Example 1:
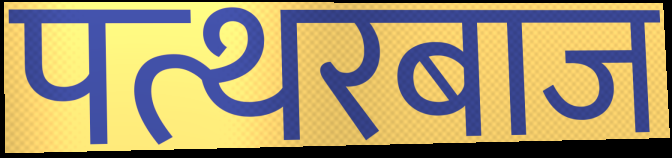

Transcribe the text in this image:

पत्थरबाज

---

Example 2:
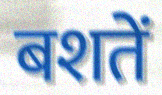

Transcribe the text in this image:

बशतें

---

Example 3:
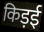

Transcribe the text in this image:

किड़ई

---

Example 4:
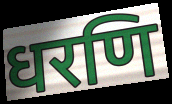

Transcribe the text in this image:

धरणि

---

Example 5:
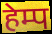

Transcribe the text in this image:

हेम्प